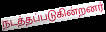
நடத்தப்படுகின்றனர்